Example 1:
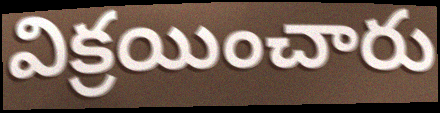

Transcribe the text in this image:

విక్రయించారు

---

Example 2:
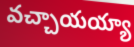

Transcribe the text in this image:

వచ్చాయయ్యా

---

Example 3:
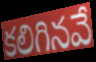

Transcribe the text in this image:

కలిగినవే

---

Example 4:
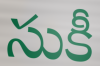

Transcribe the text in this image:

సుకీ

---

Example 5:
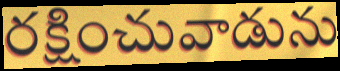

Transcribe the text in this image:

రక్షించువాడును